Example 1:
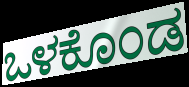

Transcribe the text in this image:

ಒಳಕೊಂಡ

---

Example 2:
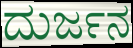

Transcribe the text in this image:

ದುರ್ಜನ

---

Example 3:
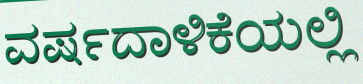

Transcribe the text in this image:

ವರ್ಷದಾಳಿಕೆಯಲ್ಲಿ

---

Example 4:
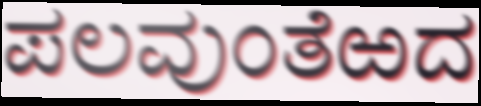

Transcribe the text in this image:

ಪಲವುಂತೆಱದ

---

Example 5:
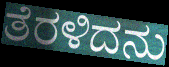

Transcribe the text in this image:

ತೆರಳಿದನು